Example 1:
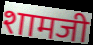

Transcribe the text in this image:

शामजी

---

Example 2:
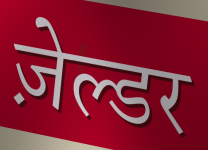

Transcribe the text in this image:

ज़ेल्डर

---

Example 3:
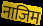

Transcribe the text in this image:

नाजिम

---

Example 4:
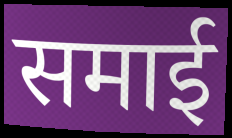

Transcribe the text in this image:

समाई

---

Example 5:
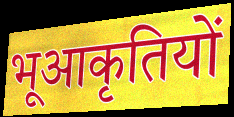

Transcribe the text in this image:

भूआकृतियों